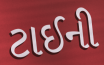
ટાઈની